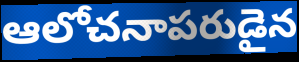
ఆలోచనాపరుడైన